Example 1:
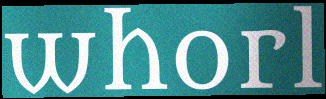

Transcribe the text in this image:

whorl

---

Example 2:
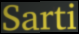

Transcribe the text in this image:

Sarti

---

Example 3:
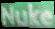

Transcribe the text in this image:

Nuke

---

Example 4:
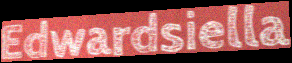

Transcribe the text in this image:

Edwardsiella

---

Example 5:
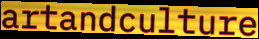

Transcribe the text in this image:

artandculture